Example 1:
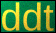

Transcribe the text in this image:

ddt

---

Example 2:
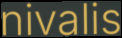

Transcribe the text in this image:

nivalis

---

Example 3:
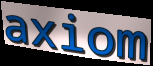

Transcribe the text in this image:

axiom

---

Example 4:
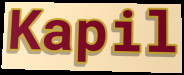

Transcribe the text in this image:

Kapil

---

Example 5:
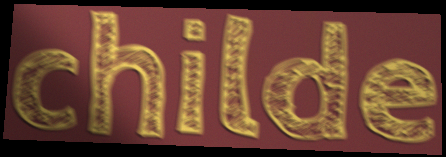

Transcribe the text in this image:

childe